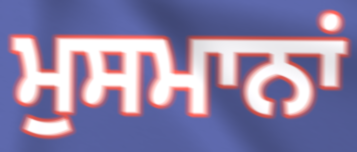
ਮੁਸਮਾਨਾਂ